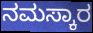
ನಮಸ್ಕಾರ